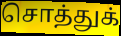
சொத்துக்